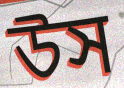
উস